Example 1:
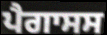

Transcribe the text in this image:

ਪੈਗਾਸਸ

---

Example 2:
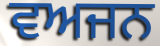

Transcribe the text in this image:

ਵਅਜਨ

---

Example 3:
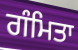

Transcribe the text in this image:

ਗੰਮਿਤਾ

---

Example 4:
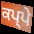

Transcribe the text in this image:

ਕਪ੍ਪੇ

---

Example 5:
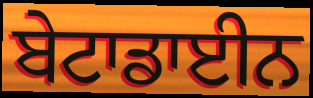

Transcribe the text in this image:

ਬੇਟਾਡਾਈਨ